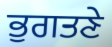
ਭੁਗਤਣੇ